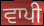
ਵਾਪੀ